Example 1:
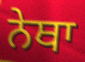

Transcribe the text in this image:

ਨੇਥਾ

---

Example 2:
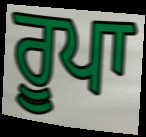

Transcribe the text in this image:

ਰੂਪਾ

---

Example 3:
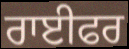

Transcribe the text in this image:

ਰਾਈਫਰ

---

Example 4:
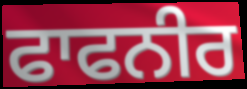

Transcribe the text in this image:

ਫਾਫਨੀਰ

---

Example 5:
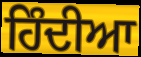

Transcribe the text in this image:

ਹਿੰਦੀਆ